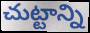
చుట్టాన్ని